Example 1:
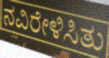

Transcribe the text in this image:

ನವಿರೇಳಿಸಿತು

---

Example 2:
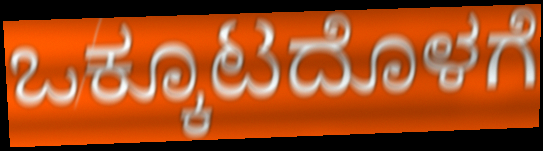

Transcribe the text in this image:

ಒಕ್ಕೂಟದೊಳಗೆ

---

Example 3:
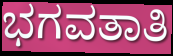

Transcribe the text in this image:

ಭಗವತಾತಿ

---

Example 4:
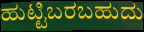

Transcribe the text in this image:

ಹುಟ್ಟಿಬರಬಹುದು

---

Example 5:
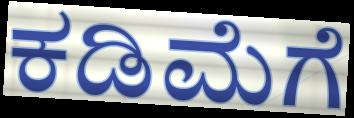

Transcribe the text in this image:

ಕಡಿಮೆಗೆ